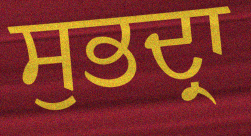
ਸੁਭਦ੍ਰਾ